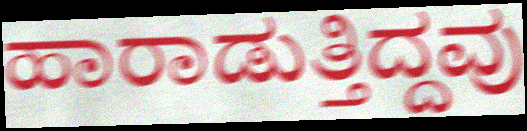
ಹಾರಾಡುತ್ತಿದ್ದವು